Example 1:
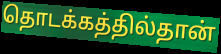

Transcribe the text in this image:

தொடக்கத்தில்தான்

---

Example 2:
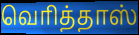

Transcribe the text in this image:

வெரித்தாஸ்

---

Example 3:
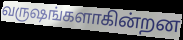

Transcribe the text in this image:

வருஷங்களாகின்றன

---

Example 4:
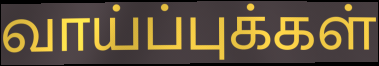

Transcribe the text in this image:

வாய்ப்புக்கள்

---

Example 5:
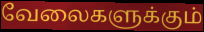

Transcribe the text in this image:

வேலைகளுக்கும்